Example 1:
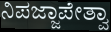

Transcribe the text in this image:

ನಿಪಜ್ಜಾಪೇತ್ವಾ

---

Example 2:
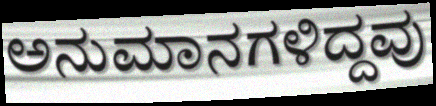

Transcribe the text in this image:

ಅನುಮಾನಗಳಿದ್ದವು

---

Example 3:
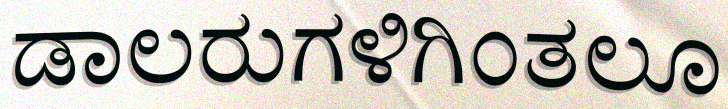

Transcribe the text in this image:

ಡಾಲರುಗಳಿಗಿಂತಲೂ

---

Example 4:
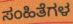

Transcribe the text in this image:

ಸಂಹಿತೆಗಳ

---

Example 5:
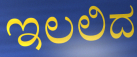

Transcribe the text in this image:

ಇಲಲಿದ